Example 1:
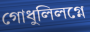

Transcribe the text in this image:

গোধুলিলগ্নে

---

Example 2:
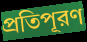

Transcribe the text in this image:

প্রতিপূরণ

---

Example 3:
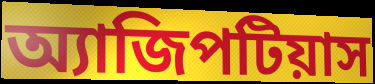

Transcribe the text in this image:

অ্যাজিপটিয়াস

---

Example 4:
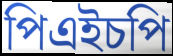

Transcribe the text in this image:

পিএইচপি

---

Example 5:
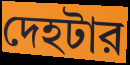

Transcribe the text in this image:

দেহটার